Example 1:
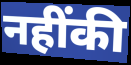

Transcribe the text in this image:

नहींकी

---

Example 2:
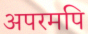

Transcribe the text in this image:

अपरमपि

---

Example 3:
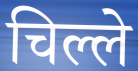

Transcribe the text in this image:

चिल्ले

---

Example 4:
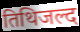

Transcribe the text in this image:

तिथिजल्द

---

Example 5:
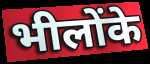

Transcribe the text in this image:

भीलोंके